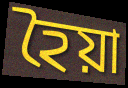
হৈয়া